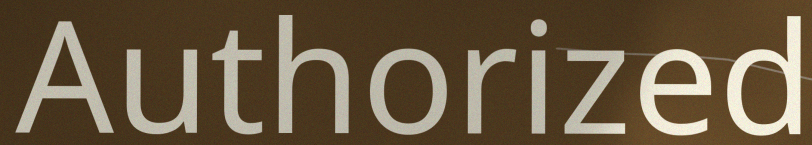
Authorized